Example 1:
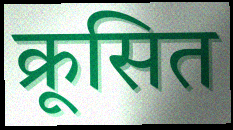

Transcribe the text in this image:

क्रूसित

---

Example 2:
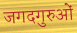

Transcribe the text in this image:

जगदगुरुओं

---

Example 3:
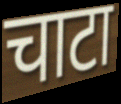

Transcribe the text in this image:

चाटा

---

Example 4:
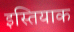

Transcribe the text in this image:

इस्तियाक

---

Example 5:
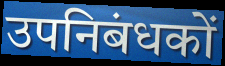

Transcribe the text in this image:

उपनिबंधकों